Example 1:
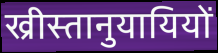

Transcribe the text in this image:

ख्रीस्तानुयायियों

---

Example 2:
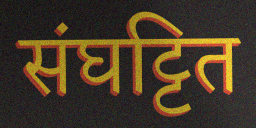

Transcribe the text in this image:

संघट्टित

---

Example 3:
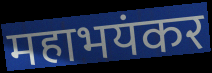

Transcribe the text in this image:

महाभयंकर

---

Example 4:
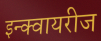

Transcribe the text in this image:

इन्क्वायरीज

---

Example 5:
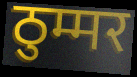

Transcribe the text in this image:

ठुम्मर